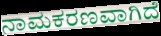
ನಾಮಕರಣವಾಗಿದೆ